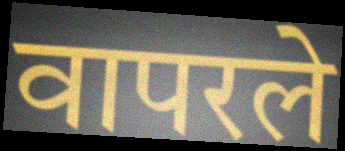
वापरले